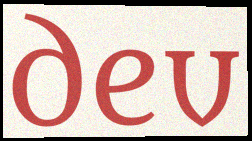
deu